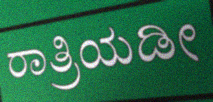
ರಾತ್ರಿಯಡೀ